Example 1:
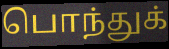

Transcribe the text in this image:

பொந்துக்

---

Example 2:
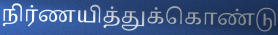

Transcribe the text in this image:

நிர்ணயித்துக்கொண்டு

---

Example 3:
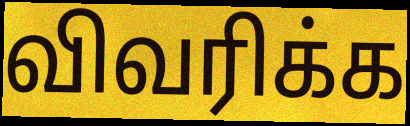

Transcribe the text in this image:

விவரிக்க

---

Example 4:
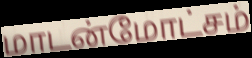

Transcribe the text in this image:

மாடன்மோட்சம்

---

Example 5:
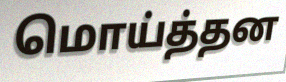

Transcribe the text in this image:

மொய்த்தன